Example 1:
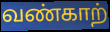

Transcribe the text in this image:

வண்காற்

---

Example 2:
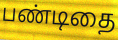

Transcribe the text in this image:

பண்டிதை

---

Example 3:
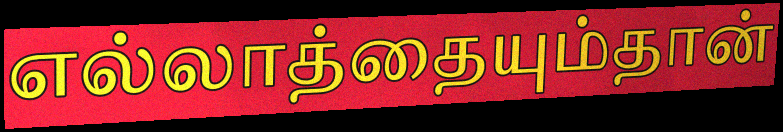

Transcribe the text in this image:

எல்லாத்தையும்தான்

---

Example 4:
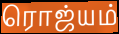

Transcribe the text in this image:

ரொஜ்யம்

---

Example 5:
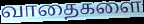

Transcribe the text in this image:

வாதைகளை